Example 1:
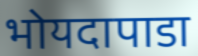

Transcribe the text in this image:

भोयदापाडा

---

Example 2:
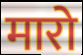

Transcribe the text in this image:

मारो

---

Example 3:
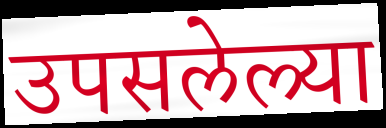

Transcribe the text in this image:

उपसलेल्या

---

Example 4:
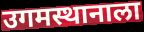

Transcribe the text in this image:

उगमस्थानाला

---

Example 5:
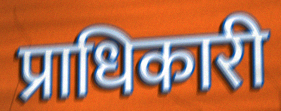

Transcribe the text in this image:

प्राधिकारी